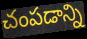
చంపడాన్ని